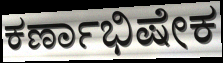
ಕರ್ಣಾಭಿಷೇಕ